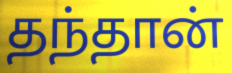
தந்தான்